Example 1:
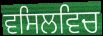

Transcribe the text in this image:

ਵਸਿਲਵਿਚ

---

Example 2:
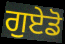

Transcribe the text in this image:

ਗੁਏਡੋ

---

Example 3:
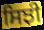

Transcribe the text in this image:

ਸਿਝੀ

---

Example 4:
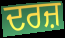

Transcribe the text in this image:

ਦਰਜ਼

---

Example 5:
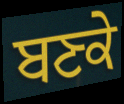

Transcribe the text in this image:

ਬਣਕੇ